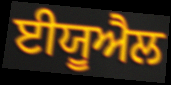
ਈਯੂਐਲ